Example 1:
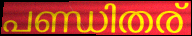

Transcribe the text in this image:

പണ്ഡിതര്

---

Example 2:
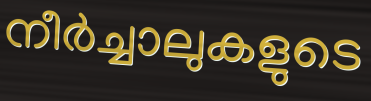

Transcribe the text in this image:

നീർച്ചാലുകളുടെ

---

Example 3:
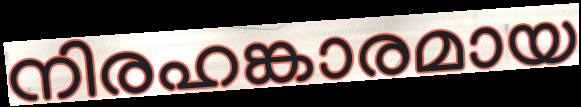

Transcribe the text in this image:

നിരഹങ്കാരമായ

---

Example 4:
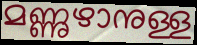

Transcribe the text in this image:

മണ്ണുഴാനുള്ള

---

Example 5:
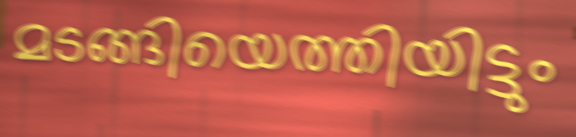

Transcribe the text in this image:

മടങ്ങിയെത്തിയിട്ടും